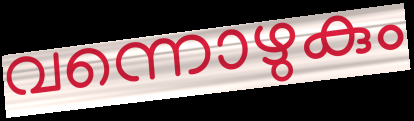
വന്നൊഴുകും